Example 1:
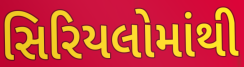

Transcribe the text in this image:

સિરિયલોમાંથી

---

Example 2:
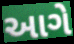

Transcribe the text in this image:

આગે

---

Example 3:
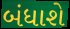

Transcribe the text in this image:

બંધાશે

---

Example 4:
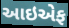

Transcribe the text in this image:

આઇએફ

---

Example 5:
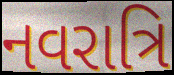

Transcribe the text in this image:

નવરાત્રિ